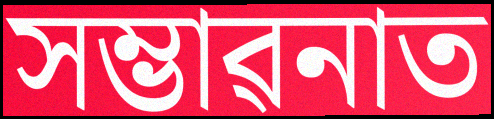
সম্ভাৱনাত